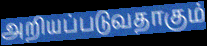
அறியப்படுவதாகும்